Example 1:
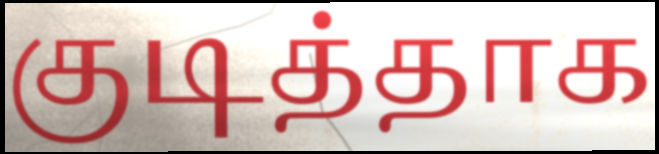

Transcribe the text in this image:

குடித்தாக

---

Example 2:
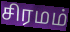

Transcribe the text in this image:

சிரமம்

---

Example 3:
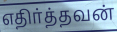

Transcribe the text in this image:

எதிர்த்தவன்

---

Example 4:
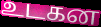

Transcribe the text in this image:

உடகன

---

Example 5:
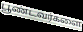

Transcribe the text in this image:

பூண்டவர்களை